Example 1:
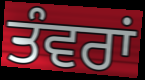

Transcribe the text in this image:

ਤੰਵਰਾਂ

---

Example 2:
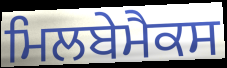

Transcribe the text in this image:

ਮਿਲਬੇਮੈਕਸ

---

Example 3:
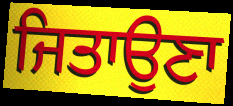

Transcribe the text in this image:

ਜਿਤਾਉਣਾ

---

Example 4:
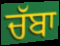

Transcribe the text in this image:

ਚੱਬਾ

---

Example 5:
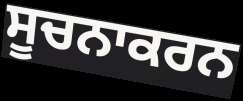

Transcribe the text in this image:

ਸੂਚਨਾਕਰਨ